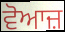
ਵੋਆਜ਼